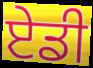
ਏਡੀ